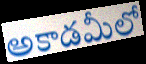
అకాడమీలో